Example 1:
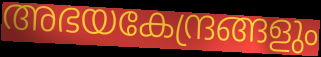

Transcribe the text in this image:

അഭയകേന്ദ്രങ്ങളും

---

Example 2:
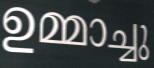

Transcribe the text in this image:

ഉമ്മാച്ചു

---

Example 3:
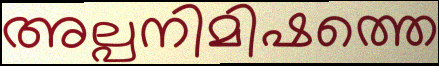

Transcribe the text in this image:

അല്പനിമിഷത്തെ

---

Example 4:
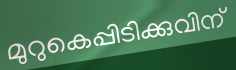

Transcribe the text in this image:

മുറുകെപ്പിടിക്കുവിന്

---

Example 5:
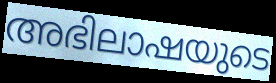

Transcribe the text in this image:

അഭിലാഷയുടെ